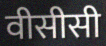
वीसीसी